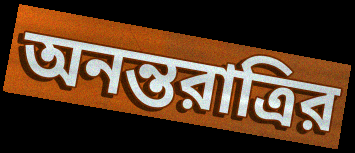
অনন্তরাত্রির